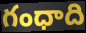
గంధాది